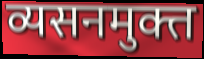
व्यसनमुक्त